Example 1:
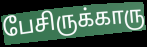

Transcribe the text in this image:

பேசிருக்காரு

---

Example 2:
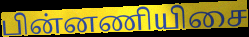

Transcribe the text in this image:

பின்னணியிசை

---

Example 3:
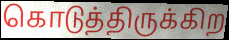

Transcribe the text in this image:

கொடுத்திருக்கிற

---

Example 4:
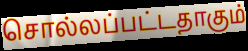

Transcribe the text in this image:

சொல்லப்பட்டதாகும்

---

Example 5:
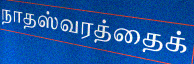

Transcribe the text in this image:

நாதஸ்வரத்தைக்